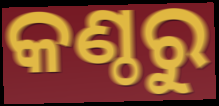
କଣ୍ଠରୁ